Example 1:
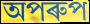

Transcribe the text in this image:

অপৰুপ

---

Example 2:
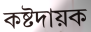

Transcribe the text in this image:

কষ্টদায়ক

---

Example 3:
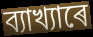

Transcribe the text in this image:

ব্যাখ্যাৰে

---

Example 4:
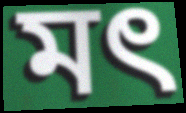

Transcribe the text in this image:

মৎ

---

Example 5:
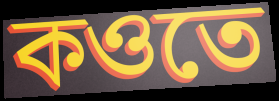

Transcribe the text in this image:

কওতে